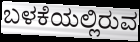
ಬಳಕೆಯಲ್ಲಿರುವ